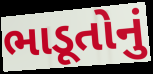
ભાડૂતોનું